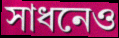
সাধনেও